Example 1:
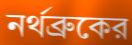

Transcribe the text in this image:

নর্থব্রুকের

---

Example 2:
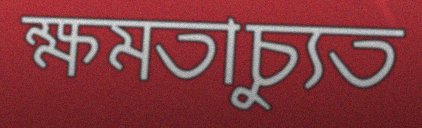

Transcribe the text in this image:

ক্ষমতাচ্যুত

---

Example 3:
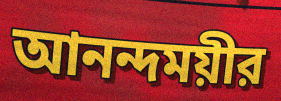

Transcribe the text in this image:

আনন্দময়ীর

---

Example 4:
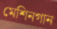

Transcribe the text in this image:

মেশিনগান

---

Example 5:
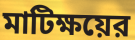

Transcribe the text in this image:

মাটিক্ষয়ের